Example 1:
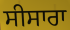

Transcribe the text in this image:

ਸੀਸਾਰਾ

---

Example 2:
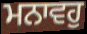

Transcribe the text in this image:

ਮਨਾਵਹੁ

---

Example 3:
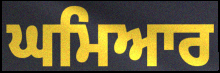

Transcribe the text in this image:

ਘਮਿਆਰ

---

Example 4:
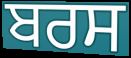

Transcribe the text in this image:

ਬਰਸ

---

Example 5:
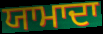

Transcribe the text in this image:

ਯਾਮਾਦਾ